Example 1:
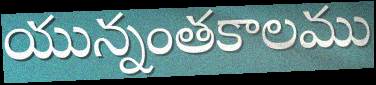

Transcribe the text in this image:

యున్నంతకాలము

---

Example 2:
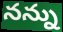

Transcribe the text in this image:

నన్ను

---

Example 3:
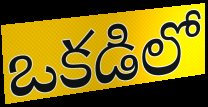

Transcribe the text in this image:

ఒకడిలో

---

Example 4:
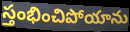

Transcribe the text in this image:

స్తంభించిపోయాను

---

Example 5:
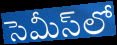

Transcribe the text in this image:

సెమీస్‌లో